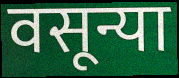
वसून्या